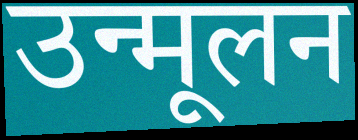
उन्मूलन